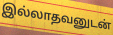
இல்லாதவனுடன்